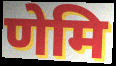
णेमि